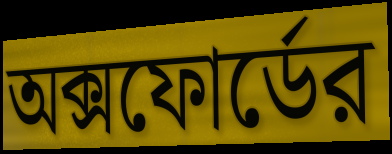
অক্সফোর্ডের